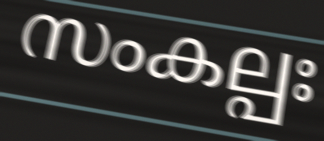
സംകല്പഃ